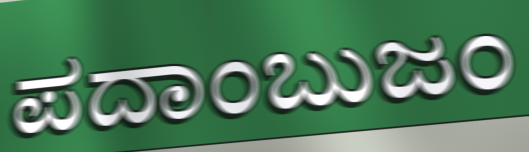
ಪದಾಂಬುಜಂ